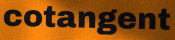
cotangent